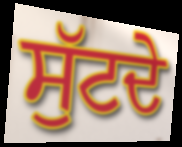
ਸੁੱਟਦੇ